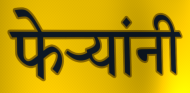
फेऱ्यांनी